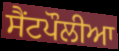
ਸੈਂਟਪੌਲੀਆ